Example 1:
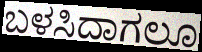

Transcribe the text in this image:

ಬಳಸಿದಾಗಲೂ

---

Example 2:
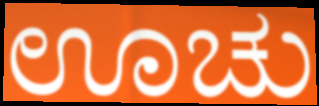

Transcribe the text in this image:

ಊಚು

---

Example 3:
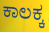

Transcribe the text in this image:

ಕಾಲಕ್ಕ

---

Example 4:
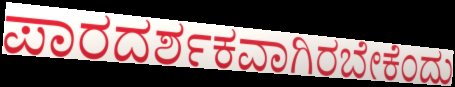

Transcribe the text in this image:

ಪಾರದರ್ಶಕವಾಗಿರಬೇಕೆಂದು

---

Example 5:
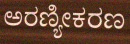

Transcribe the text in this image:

ಅರಣ್ಯೀಕರಣ